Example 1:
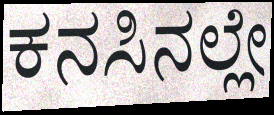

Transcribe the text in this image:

ಕನಸಿನಲ್ಲೇ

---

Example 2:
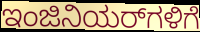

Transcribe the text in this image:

ಇಂಜಿನಿಯರ್‌ಗಳಿಗೆ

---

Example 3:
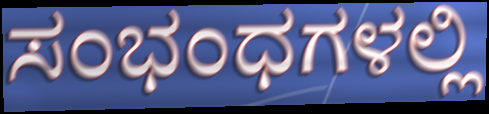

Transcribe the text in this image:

ಸಂಭಂಧಗಳಲ್ಲಿ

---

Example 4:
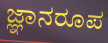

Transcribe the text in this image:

ಜ್ಞಾನರೂಪ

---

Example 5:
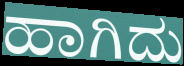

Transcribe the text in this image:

ಹಾಗಿದು